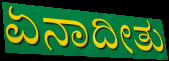
ಏನಾದೀತು